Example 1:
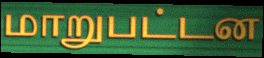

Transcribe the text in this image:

மாறுபட்டன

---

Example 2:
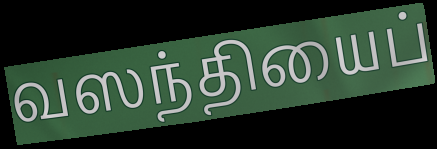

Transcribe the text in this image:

வஸந்தியைப்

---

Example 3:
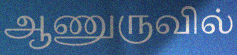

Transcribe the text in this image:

ஆணுருவில்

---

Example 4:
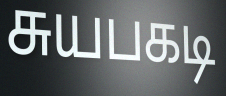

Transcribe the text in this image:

சுயபகடி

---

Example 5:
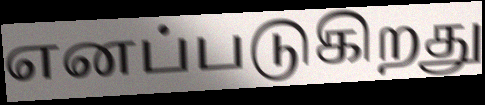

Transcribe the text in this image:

எனப்படுகிறது